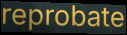
reprobate